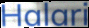
Halari